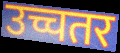
उच्चतर